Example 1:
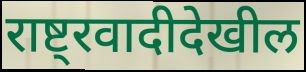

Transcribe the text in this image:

राष्ट्रवादीदेखील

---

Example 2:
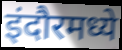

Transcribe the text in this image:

इंदौरमध्ये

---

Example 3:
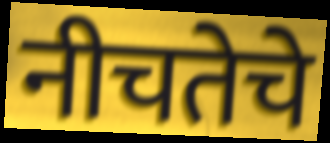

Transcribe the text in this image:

नीचतेचे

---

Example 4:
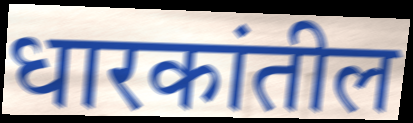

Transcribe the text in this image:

धारकांतील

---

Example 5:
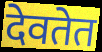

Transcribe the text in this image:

देवतेत